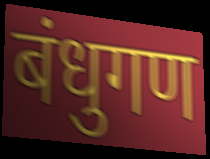
बंधुगण